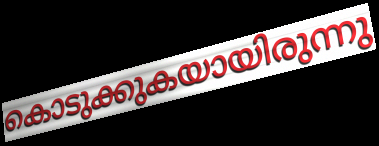
കൊടുക്കുകയായിരുന്നു